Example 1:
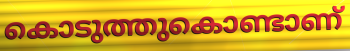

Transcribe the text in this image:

കൊടുത്തുകൊണ്ടാണ്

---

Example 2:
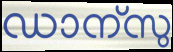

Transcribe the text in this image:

ഡാന്സു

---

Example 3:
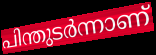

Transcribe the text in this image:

പിന്തുടർന്നാണ്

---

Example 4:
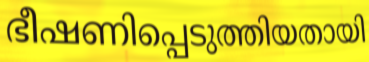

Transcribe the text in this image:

ഭീഷണിപ്പെടുത്തിയതായി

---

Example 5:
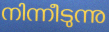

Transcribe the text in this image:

നിന്നീടുന്നു